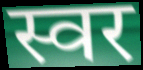
स्वर